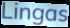
Lingas